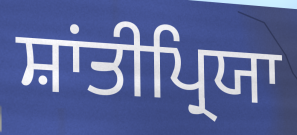
ਸ਼ਾਂਤੀਪ੍ਰਿਯਾ